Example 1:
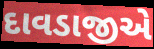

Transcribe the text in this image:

દાવડાજીએ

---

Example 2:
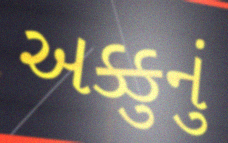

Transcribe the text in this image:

અક્કુનું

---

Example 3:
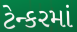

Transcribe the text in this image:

ટેન્કરમાં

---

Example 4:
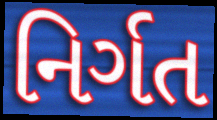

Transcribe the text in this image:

નિર્ગત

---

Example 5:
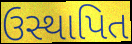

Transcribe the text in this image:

ઉસ્થાપિત